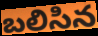
బలిసిన